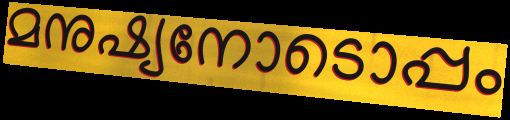
മനുഷ്യനോടൊപ്പം